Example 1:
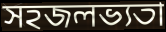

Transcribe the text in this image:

সহজলভ্যতা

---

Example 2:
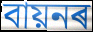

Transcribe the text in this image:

বায়নৰ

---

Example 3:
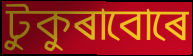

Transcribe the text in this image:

টুকুৰাবোৰে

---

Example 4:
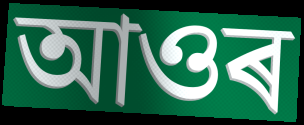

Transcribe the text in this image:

আওৰ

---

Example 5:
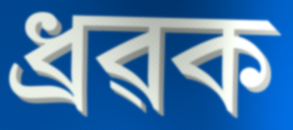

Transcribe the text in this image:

ধ্ৰৱক